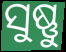
ସୁଷ୍ଣୁ